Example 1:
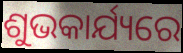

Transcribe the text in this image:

ଶୁଭକାର୍ଯ୍ୟରେ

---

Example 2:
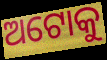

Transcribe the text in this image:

ଅଟୋକୁ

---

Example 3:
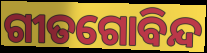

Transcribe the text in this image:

ଗୀତଗୋବିନ୍ଦ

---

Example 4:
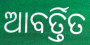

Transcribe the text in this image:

ଆବର୍ତ୍ତିତ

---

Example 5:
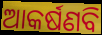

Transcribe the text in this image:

ଆକର୍ଷଣବି